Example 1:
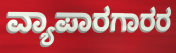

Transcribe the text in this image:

ವ್ಯಾಪಾರಗಾರರ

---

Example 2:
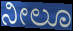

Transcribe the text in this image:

ನೀಲೂ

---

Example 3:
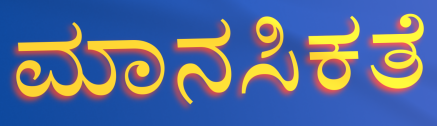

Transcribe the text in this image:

ಮಾನಸಿಕತೆ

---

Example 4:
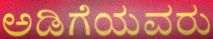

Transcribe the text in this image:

ಅಡಿಗೆಯವರು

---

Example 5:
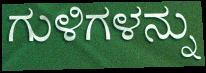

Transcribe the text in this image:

ಗುಳಿಗಳನ್ನು